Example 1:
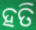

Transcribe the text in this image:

ହତି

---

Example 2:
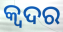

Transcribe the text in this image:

କ୍ୱଦର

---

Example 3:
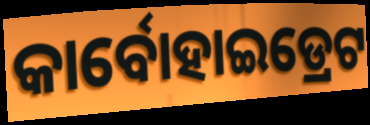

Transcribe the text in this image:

କାର୍ବୋହାଇଡ୍ରେଟ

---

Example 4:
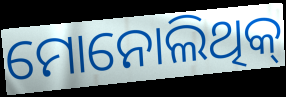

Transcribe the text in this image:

ମୋନୋଲିଥିକ୍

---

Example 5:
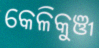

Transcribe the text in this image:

କେଳିକୁଞ୍ଜ